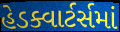
હેડક્વાર્ટર્સમાં